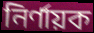
নিৰ্ণায়ক